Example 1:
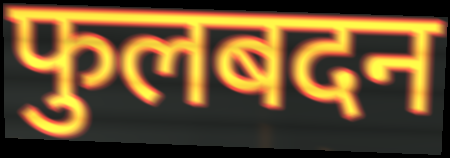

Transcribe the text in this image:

फुलबदन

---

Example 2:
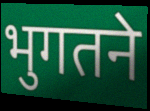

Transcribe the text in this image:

भुगतने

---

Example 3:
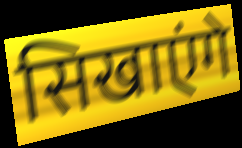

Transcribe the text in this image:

सिखाएंगे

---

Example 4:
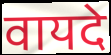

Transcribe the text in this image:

वायदे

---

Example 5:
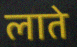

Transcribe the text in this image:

लाते